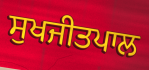
ਸੁਖਜੀਤਪਾਲ